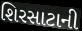
શિરસાટાની